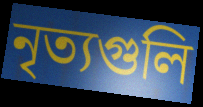
নৃত্যগুলি